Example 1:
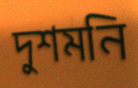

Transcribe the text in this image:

দুশমনি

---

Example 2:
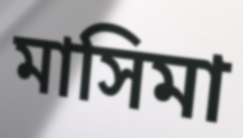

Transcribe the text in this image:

মাসিমা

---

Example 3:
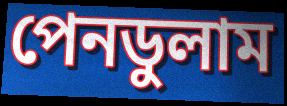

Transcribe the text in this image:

পেনডুলাম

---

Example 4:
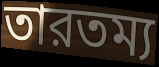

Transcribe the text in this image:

তারতম্য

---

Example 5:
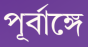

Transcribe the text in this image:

পূর্বাঙ্গে